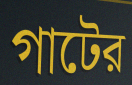
গাটের